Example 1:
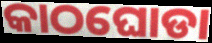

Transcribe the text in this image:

କାଠଘୋଡା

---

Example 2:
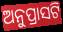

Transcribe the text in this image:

ଅନୁପ୍ରାସଟି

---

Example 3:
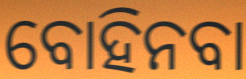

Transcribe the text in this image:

ବୋହିନବା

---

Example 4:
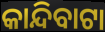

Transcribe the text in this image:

କାନ୍ଦିବାଟା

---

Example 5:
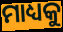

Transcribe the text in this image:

ମାଧ୍ୟକୁ